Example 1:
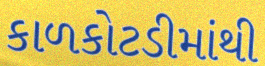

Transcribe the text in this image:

કાળકોટડીમાંથી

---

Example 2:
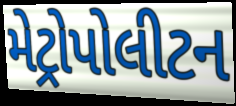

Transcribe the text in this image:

મેટ્રોપોલીટન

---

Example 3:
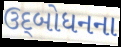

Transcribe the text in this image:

ઉદ્‌બોધનના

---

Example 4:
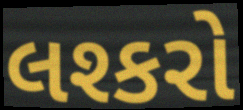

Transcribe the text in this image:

લશ્કરો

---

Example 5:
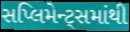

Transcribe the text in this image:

સપ્લિમેન્ટ્સમાંથી